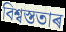
বিশ্বস্ততাৰ